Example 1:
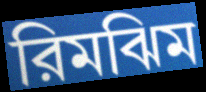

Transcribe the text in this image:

রিমঝিম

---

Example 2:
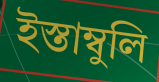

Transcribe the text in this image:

ইস্তাম্বুলি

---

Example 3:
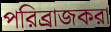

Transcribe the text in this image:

পরিব্রাজকরা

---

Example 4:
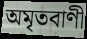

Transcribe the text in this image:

অমৃতবাণী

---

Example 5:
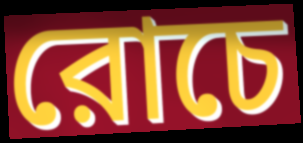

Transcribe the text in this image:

রোচে